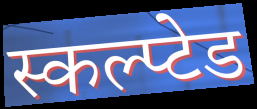
स्कल्प्टेड